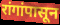
रांगांपासून